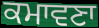
ਕਮਾਵਣਾ